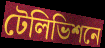
টেলিভিশনে